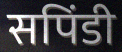
सपिंडी